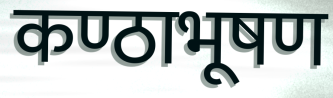
कण्ठाभूषण